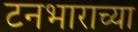
टनभाराच्या